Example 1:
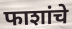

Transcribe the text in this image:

फाशांचे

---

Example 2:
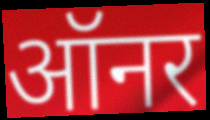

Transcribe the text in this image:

ऑनर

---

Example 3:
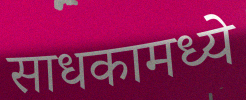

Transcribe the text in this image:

साधकामध्ये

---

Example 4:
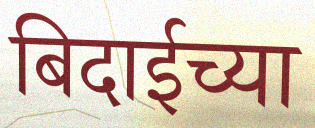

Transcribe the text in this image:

बिदाईच्या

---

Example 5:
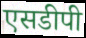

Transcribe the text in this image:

एसडीपी